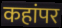
कहांपर